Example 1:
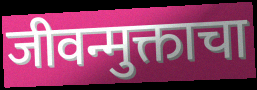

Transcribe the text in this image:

जीवन्मुक्ताचा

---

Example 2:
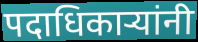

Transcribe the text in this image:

पदाधिकार्‍यांनी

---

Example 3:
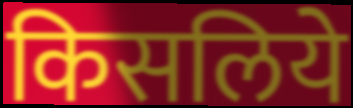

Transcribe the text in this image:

किसलिये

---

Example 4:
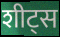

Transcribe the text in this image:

शीट्स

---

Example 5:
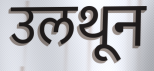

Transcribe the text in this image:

उलथून